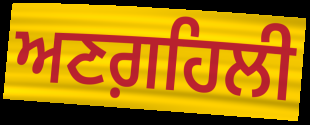
ਅਣਗ਼ਹਿਲੀ